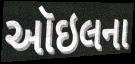
ઑઇલના